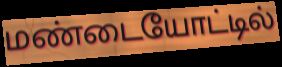
மண்டையோட்டில்